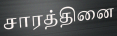
சாரத்தினை